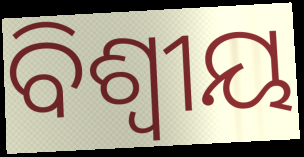
ବିଶ୍ଵୀୟ